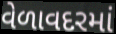
વેળાવદરમાં